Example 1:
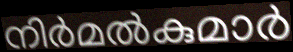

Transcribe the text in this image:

നിർമൽകുമാർ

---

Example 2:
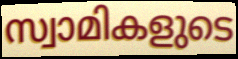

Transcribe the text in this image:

സ്വാമികളുടെ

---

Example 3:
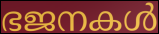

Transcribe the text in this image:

ഭജനകൾ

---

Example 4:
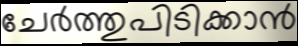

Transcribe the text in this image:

ചേർത്തുപിടിക്കാൻ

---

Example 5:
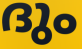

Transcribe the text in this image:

ദും